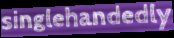
singlehandedly